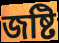
জষ্টি